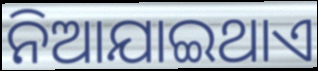
ନିଆଯାଇଥାଏ